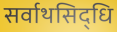
सर्वाथसिद्धि